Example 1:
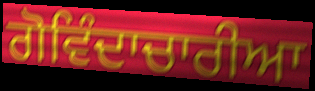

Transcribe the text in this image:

ਗੋਵਿੰਦਾਚਾਰੀਆ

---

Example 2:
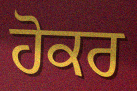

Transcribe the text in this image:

ਹੋਕਰ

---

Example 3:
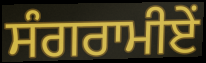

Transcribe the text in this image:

ਸੰਗਰਾਮੀਏਂ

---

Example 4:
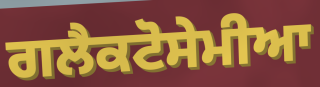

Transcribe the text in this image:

ਗਲੈਕਟੋਸੇਮੀਆ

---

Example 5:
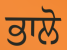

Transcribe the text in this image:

ਭਾਲੋ